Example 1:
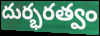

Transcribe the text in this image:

దుర్భరత్వం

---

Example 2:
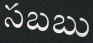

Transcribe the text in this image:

సబబు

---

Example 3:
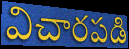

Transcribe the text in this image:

విచారపడి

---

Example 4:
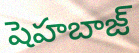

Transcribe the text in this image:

షెహబాజ్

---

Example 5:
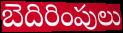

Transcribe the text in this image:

బెదిరింపులు